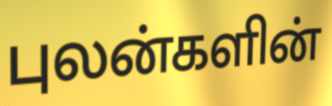
புலன்களின்